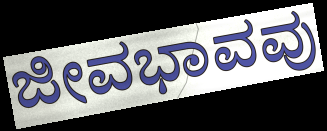
ಜೀವಭಾವವು